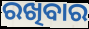
ରଖିବାର